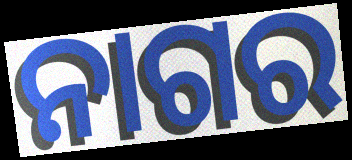
ନାଗର